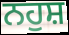
ਨਹੁਸ਼